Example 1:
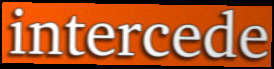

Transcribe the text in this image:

intercede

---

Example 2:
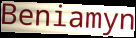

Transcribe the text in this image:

Beniamyn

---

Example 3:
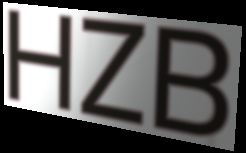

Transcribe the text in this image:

HZB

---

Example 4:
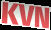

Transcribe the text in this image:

KVN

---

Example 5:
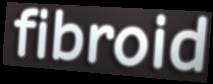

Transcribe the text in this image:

fibroid